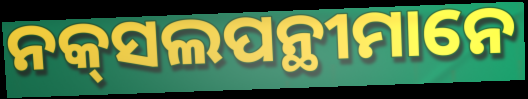
ନକ୍‌ସଲପନ୍ଥୀମାନେ